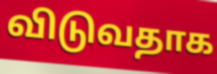
விடுவதாக